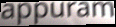
appuram